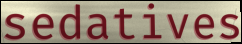
sedatives